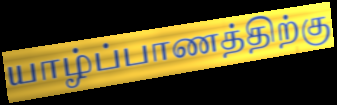
யாழ்ப்பாணத்திற்கு